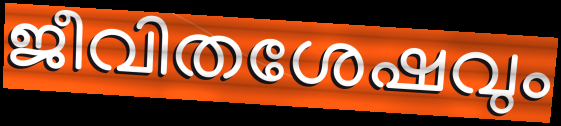
ജീവിതശേഷവും